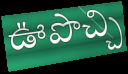
ఊపొచ్చి